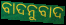
ବାଦନୁବାଦ